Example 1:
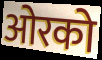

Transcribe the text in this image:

ओरको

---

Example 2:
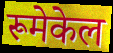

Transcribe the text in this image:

रूमेकेल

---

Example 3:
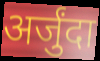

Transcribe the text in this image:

अर्जुंदा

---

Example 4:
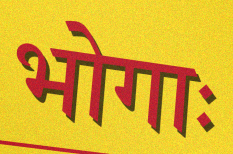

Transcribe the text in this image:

भोगाः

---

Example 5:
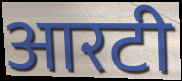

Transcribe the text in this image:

आरटी